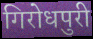
गिरोधपुरी